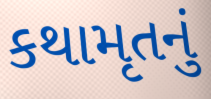
કથામૃતનું